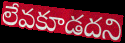
లేవకూడదని